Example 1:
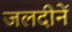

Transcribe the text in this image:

जलदीनें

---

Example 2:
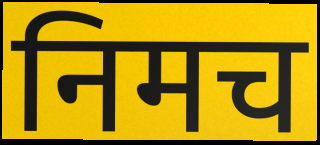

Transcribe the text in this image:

निमच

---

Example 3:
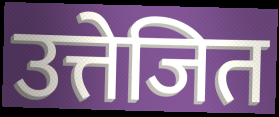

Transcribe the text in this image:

उत्तेजित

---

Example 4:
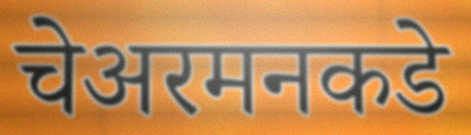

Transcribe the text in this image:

चेअरमनकडे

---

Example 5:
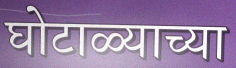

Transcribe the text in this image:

घोटाळ्याच्या